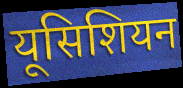
यूसिशियन